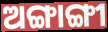
ଅଙ୍ଗାଙ୍ଗୀ